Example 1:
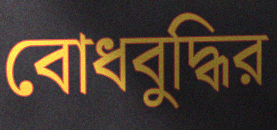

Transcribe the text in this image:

বোধবুদ্ধির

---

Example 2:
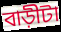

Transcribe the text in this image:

বাড়ীটা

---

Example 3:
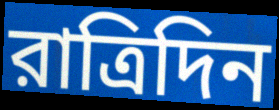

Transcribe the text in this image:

রাত্রিদিন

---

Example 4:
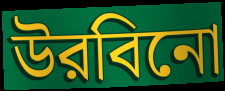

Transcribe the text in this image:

উরবিনো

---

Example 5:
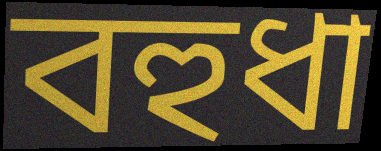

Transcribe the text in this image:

বহুধা